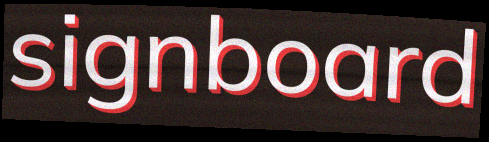
signboard